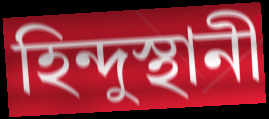
হিন্দুস্থানী